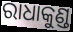
ରାଧାକୁଣ୍ଡ